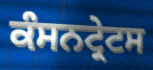
ਕੰਸਨਟ੍ਰੇਟਸ